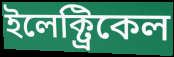
ইলেক্ট্রিকেল